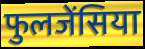
फुलजेंसिया